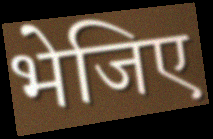
भेजिए